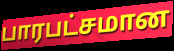
பாரபட்சமான